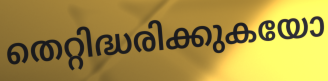
തെറ്റിദ്ധരിക്കുകയോ